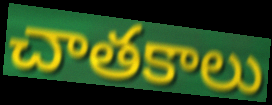
చాతకాలు